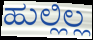
ಹುಲ್ಲಿಲ್ಲ